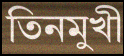
তিনমুখী